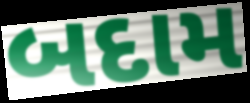
બદામ